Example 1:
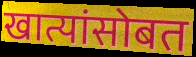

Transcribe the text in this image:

खात्यांसोबत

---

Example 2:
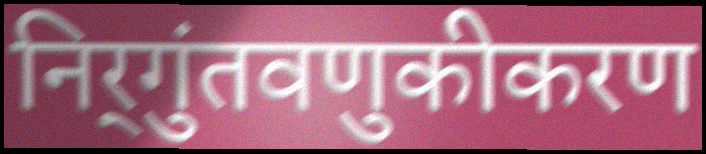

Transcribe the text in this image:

निर्गुंतवणुकीकरण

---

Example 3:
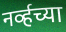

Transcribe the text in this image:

नर्व्हच्या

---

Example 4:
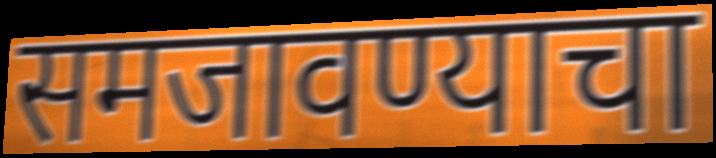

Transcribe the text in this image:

समजावण्याचा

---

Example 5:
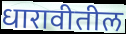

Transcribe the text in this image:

धारावीतील